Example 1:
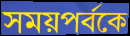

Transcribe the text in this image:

সময়পর্বকে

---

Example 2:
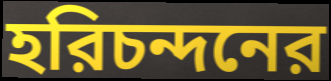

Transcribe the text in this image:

হরিচন্দনের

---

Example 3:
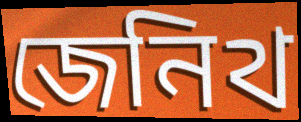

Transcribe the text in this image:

জেনিথ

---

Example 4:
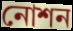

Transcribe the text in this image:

নোশন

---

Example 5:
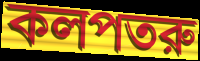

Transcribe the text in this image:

কলপতরু